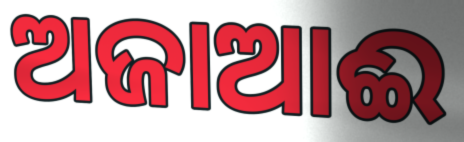
ଅଜାଆଈ